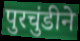
पुरचुंडीने